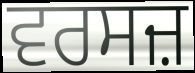
ਵਰਸਜ਼